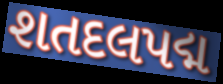
શતદલપદ્મ